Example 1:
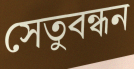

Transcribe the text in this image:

সেতুবন্ধন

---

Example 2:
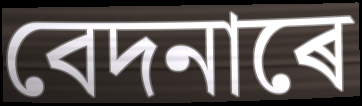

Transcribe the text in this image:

বেদনাৰে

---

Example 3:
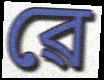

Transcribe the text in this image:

ৱে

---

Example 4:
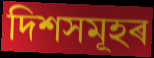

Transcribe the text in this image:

দিশসমূহৰ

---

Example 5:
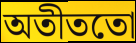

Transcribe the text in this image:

অতীততো